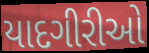
યાદગીરીઓ